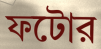
ফটোর